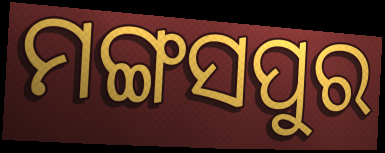
ମଙ୍ଗସପୁର